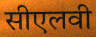
सीएलवी